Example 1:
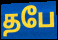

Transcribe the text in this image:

தபே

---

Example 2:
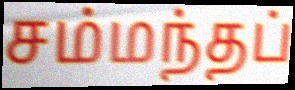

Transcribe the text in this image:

சம்மந்தப்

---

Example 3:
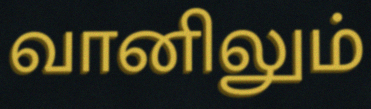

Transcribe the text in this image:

வானிலும்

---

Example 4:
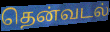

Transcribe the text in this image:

தென்வடல்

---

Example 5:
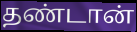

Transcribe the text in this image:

தண்டான்